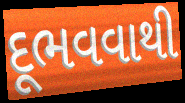
દૂભવવાથી